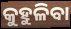
କୁହୁଳିବା